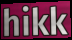
hikk